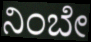
ನಿಂಬೇ